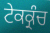
ਟੇਕਕ੍ਰੰਚ